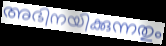
അഭിനയിക്കുന്നതും